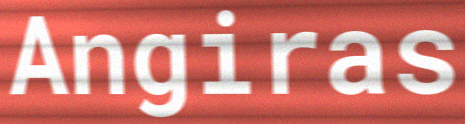
Angiras